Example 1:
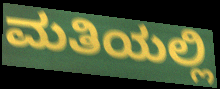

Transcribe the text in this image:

ಮತಿಯಲ್ಲಿ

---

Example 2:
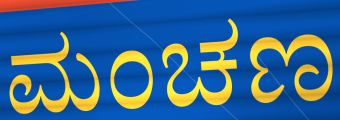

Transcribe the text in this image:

ಮಂಚಣ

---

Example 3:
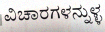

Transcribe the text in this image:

ವಿಚಾರಗಳನ್ನುಳ್ಳ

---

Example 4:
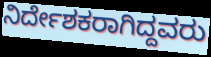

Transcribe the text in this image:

ನಿರ್ದೇಶಕರಾಗಿದ್ದವರು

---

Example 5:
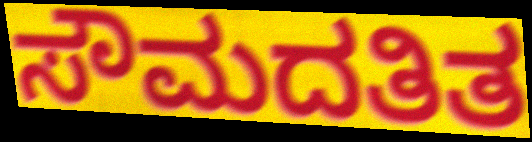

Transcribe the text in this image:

ಸೌಮದತಿತ